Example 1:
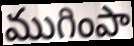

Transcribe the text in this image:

ముగింపా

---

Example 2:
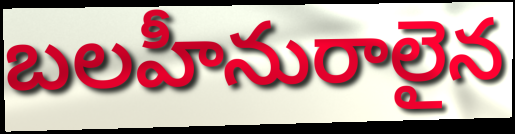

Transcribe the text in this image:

బలహీనురాలైన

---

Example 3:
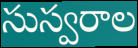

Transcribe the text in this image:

సుస్వరాల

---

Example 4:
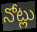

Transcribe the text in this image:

నోట్లు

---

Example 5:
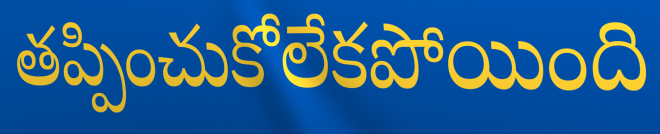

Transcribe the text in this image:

తప్పించుకోలేకపోయింది